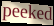
peeked